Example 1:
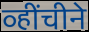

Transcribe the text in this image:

व्हींचीने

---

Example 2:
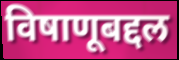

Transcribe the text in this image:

विषाणूबद्दल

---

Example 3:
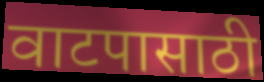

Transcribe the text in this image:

वाटपासाठी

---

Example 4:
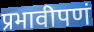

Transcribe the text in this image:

प्रभावीपणं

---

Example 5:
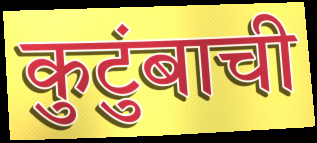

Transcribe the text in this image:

कुटुंबाची